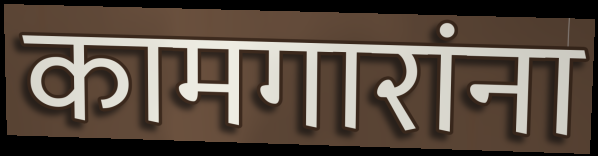
कामगारांना